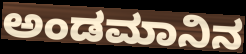
ಅಂಡಮಾನಿನ